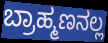
ಬ್ರಾಹ್ಮಣನಲ್ಲ